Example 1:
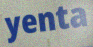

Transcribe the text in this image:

yenta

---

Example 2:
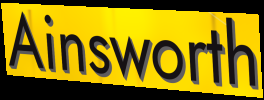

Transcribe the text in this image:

Ainsworth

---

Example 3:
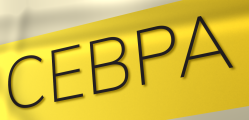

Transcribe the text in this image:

CEBPA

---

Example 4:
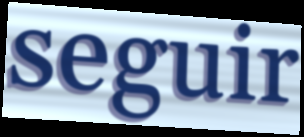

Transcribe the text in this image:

seguir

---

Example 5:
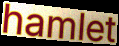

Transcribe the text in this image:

hamlet